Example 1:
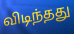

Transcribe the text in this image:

விடிந்தது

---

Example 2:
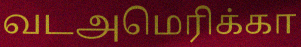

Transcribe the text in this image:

வடஅமெரிக்கா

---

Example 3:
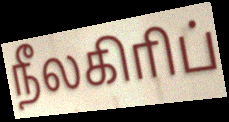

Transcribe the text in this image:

நீலகிரிப்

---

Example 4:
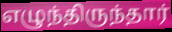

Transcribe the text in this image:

எழுந்திருந்தார்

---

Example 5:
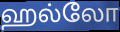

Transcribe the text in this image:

ஹல்லோ